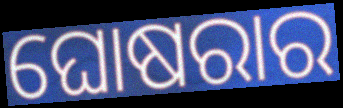
ଘୋଷରାର